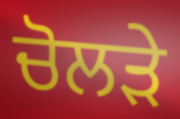
ਚੋਲੜੇ